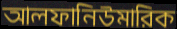
আলফানিউমারিক